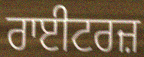
ਰਾਈਟਰਜ਼